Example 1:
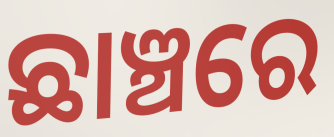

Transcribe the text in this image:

ଛାଞ୍ଚରେ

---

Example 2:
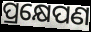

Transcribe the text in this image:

ପ୍ରକ୍ଷେପଣ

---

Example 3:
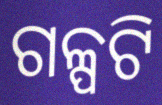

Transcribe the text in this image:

ଗଳ୍ପଟି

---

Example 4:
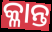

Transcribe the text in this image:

କ୍ଳାନ୍ତ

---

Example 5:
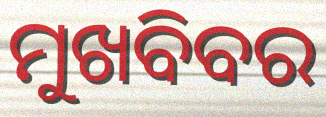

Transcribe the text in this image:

ମୁଖବିବର